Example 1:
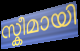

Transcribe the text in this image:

സ്കീമായി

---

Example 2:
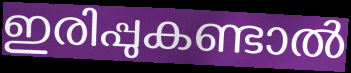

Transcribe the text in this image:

ഇരിപ്പുകണ്ടാൽ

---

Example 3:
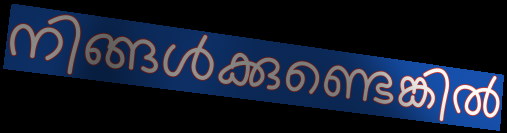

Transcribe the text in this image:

നിങ്ങൾക്കുണ്ടെങ്കിൽ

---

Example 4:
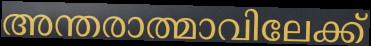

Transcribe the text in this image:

അന്തരാത്മാവിലേക്ക്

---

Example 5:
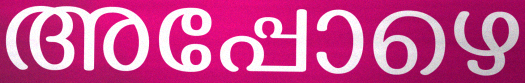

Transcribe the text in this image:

അപ്പോഴെ